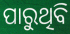
ପାରୁଥିବି